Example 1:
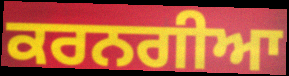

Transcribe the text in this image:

ਕਰਨਗੀਆ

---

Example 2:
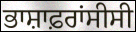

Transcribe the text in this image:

ਭਾਸ਼ਾਫ਼ਰਾਂਸੀਸੀ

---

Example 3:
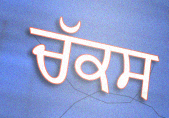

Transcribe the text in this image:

ਚੱਕਸ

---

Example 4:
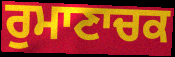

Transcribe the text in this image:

ਰੁਮਾਣਾਚਕ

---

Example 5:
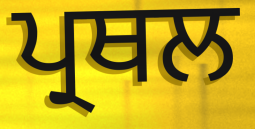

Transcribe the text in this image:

ਪ੍ਰਥਲ